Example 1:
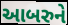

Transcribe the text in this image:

આબરુને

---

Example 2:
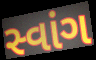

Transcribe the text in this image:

સ્વાંગ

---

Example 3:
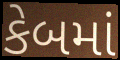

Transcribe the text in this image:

કેબમાં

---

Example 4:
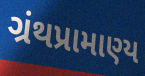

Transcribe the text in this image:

ગ્રંથપ્રામાણ્ય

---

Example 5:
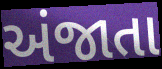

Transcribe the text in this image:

અંજાતા